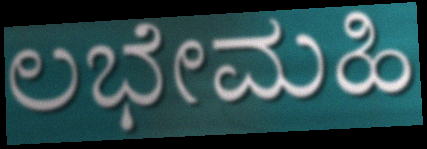
ಲಭೇಮಹಿ